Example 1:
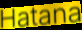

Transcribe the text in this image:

Hatana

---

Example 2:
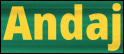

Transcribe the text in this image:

Andaj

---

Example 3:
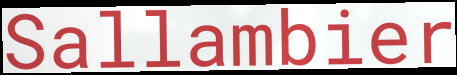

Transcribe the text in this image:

Sallambier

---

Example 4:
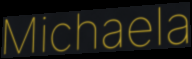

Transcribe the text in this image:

Michaela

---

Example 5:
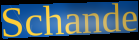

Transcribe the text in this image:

Schande